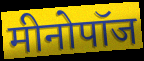
मीनोपॉज